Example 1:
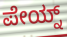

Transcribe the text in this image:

ಪೇಯ್ನ್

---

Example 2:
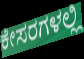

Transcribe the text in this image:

ಕೇಸರಗಳಲ್ಲಿ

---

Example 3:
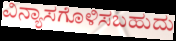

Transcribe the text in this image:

ವಿನ್ಯಾಸಗೊಳಿಸಬಹುದು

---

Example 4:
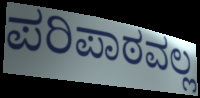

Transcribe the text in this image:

ಪರಿಪಾಠವಲ್ಲ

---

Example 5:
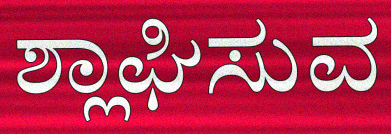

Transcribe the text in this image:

ಶ್ಲಾಘಿಸುವ